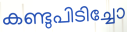
കണ്ടുപിടിച്ചോ